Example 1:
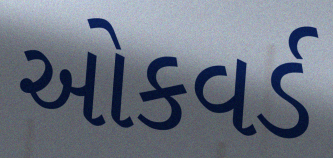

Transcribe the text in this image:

ઓકવર્ડ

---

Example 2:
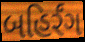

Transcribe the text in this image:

બહિર્રંગ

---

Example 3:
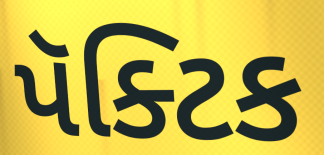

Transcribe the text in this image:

પૅક્ટિક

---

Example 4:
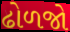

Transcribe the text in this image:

ઢોળજો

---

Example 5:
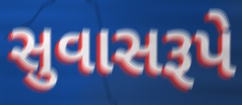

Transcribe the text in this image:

સુવાસરૂપે